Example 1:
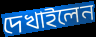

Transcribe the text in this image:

দেখাইলেন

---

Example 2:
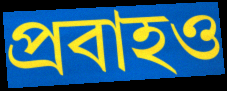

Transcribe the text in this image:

প্রবাহও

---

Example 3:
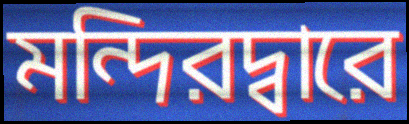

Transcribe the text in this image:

মন্দিরদ্বারে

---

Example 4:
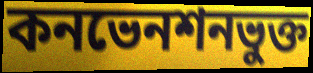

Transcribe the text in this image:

কনভেনশনভুক্ত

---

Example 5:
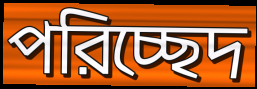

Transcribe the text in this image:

পরিচ্ছেদ